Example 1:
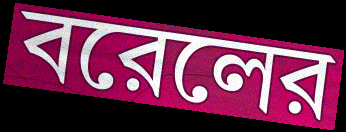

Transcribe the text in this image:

বরেলের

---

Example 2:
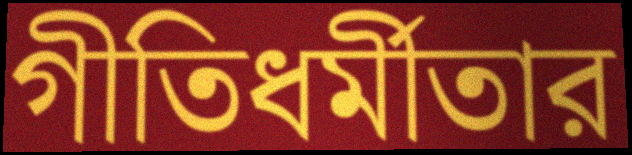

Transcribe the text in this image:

গীতিধর্মীতার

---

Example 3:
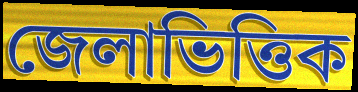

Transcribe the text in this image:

জেলাভিত্তিক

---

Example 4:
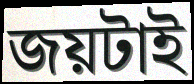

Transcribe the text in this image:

জয়টাই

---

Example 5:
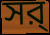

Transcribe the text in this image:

সর্